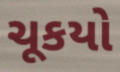
ચૂકયો